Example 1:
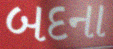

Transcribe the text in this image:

બદના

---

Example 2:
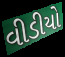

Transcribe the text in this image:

વીડીયો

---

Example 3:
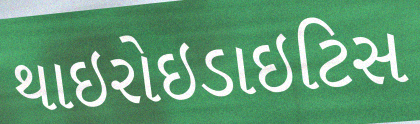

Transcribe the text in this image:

થાઇરોઇડાઇટિસ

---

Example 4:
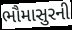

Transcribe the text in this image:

ભૌમાસુરની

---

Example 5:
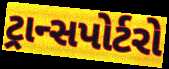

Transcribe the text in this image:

ટ્રાન્સપોર્ટરો